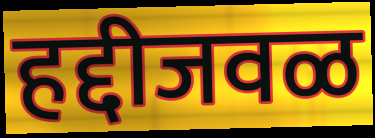
हद्दीजवळ